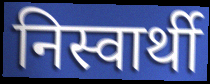
निस्वार्थी